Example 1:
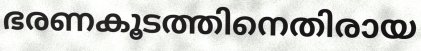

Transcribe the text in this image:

ഭരണകൂടത്തിനെതിരായ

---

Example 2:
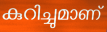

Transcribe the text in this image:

കുറിച്ചുമാണ്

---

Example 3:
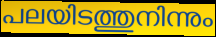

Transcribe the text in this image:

പലയിടത്തുനിന്നും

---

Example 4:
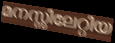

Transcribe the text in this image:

മനസ്സിലേറ്റിയ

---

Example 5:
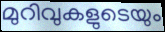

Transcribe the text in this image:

മുറിവുകളുടെയും